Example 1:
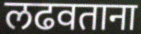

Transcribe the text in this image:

लढवताना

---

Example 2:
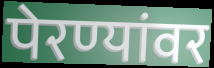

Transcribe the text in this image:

पेरण्यांवर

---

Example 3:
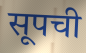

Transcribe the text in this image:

सूपची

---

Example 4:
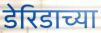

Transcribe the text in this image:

डेरिडाच्या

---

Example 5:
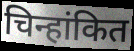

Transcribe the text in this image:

चिन्हांकित